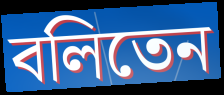
বলিতেন